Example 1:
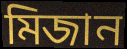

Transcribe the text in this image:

মিজান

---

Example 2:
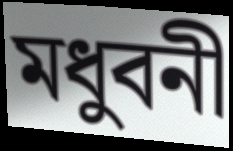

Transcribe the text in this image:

মধুবনী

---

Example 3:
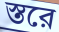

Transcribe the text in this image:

স্তরে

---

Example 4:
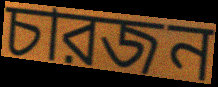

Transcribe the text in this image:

চারজন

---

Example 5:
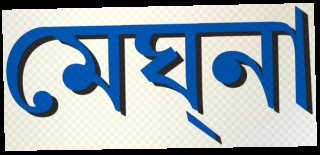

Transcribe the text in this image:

মেঘ্‌না